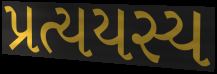
પ્રત્યયસ્ય